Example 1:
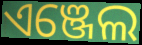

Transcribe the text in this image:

ଏଞ୍ଜେଲ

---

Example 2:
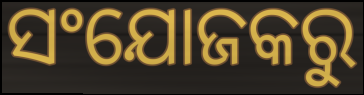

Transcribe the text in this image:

ସଂଯୋଜକରୁ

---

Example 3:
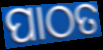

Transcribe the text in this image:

ପାଠତ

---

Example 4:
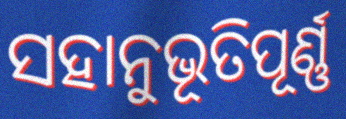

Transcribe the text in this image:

ସହାନୁଭୂତିପୂର୍ଣ୍ଣ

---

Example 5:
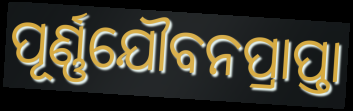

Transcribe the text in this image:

ପୂର୍ଣ୍ଣଯୌବନପ୍ରାପ୍ତା